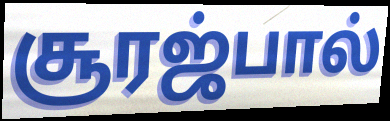
சூரஜ்பால்